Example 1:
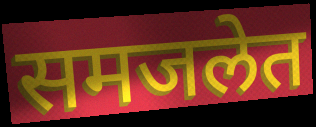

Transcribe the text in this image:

समजलेत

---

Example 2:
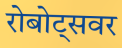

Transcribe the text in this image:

रोबोट्सवर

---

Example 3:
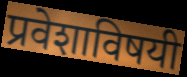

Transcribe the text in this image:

प्रवेशाविषयी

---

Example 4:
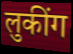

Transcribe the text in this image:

लुकींग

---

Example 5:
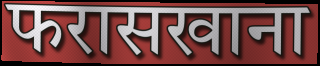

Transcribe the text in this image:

फरासखाना